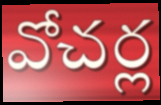
వోచర్ల